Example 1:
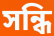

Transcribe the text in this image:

সন্ধি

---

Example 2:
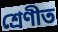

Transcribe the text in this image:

শ্ৰেণীত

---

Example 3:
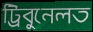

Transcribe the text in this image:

ট্ৰিবুনেলত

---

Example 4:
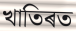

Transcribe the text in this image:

খাতিৰত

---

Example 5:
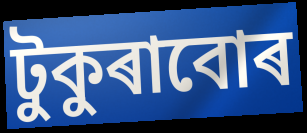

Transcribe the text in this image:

টুকুৰাবোৰ